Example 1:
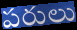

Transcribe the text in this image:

పరులు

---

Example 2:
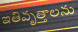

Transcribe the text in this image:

ఇతివృత్తాలను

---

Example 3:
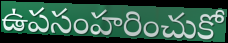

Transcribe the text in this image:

ఉపసంహరించుకో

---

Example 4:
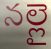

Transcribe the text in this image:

నల్లై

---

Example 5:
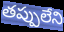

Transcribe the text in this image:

తప్పులేని